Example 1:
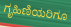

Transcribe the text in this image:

ಗೃಹಿಣಿಯರಿಗೂ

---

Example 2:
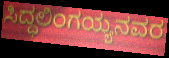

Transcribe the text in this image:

ಸಿದ್ಧಲಿಂಗಯ್ಯನವರ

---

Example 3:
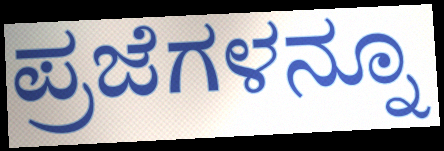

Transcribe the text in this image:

ಪ್ರಜೆಗಳನ್ನೂ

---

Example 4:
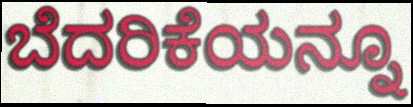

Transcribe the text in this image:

ಬೆದರಿಕೆಯನ್ನೂ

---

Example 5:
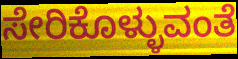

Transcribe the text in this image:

ಸೇರಿಕೊಳ್ಳುವಂತೆ